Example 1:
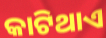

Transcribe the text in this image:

କାଟିଥାଏ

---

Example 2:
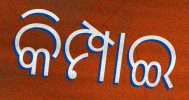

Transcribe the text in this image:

କିମ୍ପାଇ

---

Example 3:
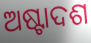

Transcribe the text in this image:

ଅଷ୍ଟାଦଶ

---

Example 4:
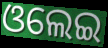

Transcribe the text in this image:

ଓଲେଇ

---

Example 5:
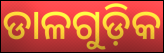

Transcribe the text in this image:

ଡାଳଗୁଡ଼ିକ